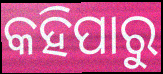
କହିପାରୁ